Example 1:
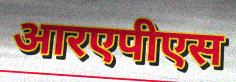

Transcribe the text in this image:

आरएपीएस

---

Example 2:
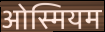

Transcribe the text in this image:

ओस्मियम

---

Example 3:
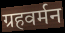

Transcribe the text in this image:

ग्रहवर्मन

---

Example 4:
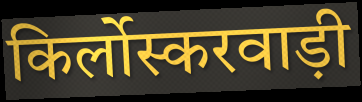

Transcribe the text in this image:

किर्लोस्करवाड़ी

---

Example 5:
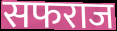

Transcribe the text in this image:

सफराज